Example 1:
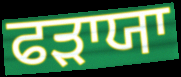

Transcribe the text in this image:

ਫੜਾਯਾ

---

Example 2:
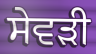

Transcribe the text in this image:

ਸੇਵੜੀ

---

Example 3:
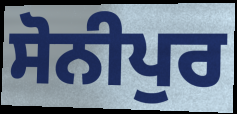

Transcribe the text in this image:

ਸੋਨੀਪੁਰ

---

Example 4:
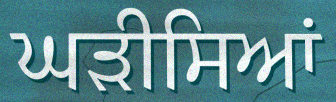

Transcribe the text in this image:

ਘੜੀਸਿਆਂ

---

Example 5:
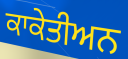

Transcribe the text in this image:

ਕਾਕੇਤੀਅਨ